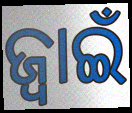
ଜ୍ବାଇଁ